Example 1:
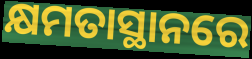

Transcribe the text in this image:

କ୍ଷମତାସ୍ଥାନରେ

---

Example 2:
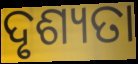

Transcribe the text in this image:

ଦୃଶ୍ୟତା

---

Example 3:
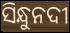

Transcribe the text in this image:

ସିନ୍ଧୁନଦୀ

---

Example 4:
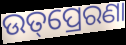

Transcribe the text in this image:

ଉତ୍‌ପ୍ରେରଣା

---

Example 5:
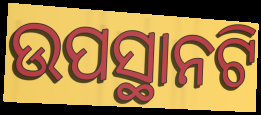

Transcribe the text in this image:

ଉପସ୍ଥାନଟି